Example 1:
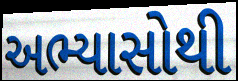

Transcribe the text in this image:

અભ્યાસોથી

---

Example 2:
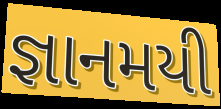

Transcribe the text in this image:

જ્ઞાનમયી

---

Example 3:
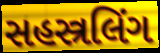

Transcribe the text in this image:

સહસ્ત્રલિંગ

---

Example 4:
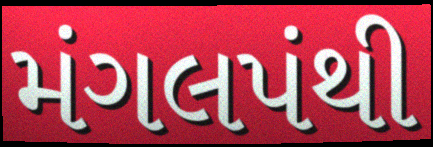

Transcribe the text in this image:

મંગલપંથી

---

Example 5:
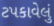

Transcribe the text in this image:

ટપકાવેલું